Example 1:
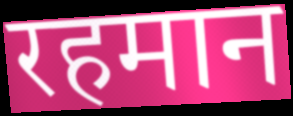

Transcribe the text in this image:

रहमान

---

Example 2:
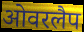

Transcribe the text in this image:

ओवरलैप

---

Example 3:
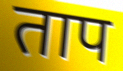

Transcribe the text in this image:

ताप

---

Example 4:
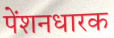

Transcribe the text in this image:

पेंशनधारक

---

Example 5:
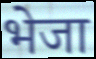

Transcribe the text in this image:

भेजा